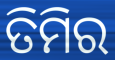
ତିମିର